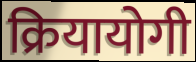
क्रियायोगी